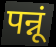
पन्नूं